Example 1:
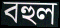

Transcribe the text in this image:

বহুল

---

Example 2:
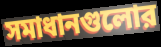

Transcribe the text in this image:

সমাধানগুলোর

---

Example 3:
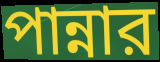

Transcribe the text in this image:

পান্নার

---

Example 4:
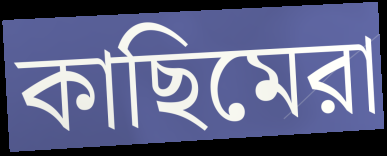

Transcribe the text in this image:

কাছিমেরা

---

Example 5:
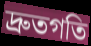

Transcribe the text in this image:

দ্রুতগতি